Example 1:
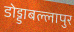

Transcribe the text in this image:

डोड्डाबल्लापुर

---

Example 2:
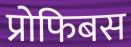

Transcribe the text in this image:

प्रोफिबस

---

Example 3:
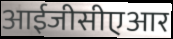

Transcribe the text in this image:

आईजीसीएआर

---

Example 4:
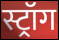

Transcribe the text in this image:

स्ट्रॉग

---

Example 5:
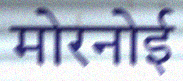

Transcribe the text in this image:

मोरनोई